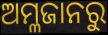
ଅମ୍ଳଜାନରୁ